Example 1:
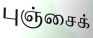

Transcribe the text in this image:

புஞ்சைக்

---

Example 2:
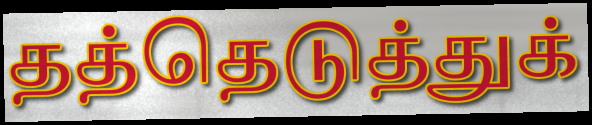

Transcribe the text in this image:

தத்தெடுத்துக்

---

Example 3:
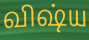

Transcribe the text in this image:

விஷ்ய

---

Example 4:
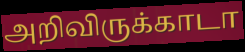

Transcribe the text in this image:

அறிவிருக்காடா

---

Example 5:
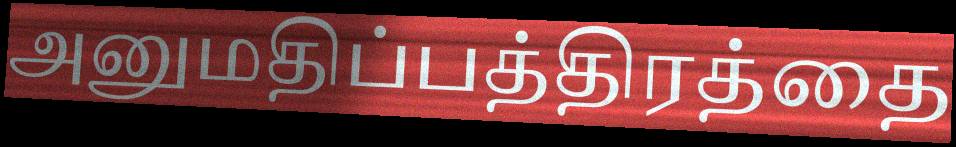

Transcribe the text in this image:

அனுமதிப்பத்திரத்தை